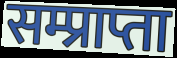
सम्प्राप्ता